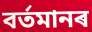
বৰ্তমানৰ